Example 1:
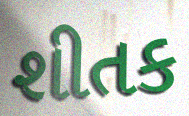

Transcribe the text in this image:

શીતક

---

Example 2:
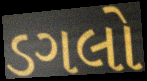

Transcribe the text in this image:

ડગલો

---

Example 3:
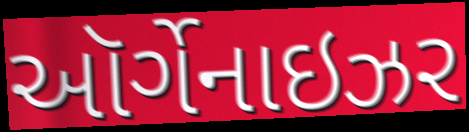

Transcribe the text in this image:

ઑર્ગેનાઇઝર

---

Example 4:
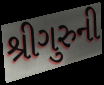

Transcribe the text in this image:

શ્રીગુરુની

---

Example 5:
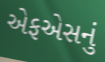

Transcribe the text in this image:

એફએસનું